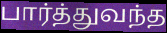
பார்த்துவந்த